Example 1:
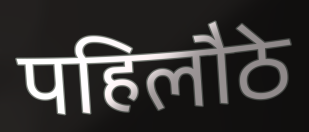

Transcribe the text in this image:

पहिलौठे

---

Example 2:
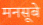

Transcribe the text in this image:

मनसूबे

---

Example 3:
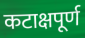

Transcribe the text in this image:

कटाक्षपूर्ण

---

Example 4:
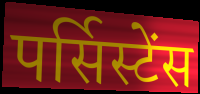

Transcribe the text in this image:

पर्सिस्टेंस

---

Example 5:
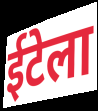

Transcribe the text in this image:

ईटेला